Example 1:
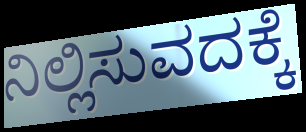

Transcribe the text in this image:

ನಿಲ್ಲಿಸುವದಕ್ಕೆ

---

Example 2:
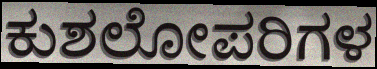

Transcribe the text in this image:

ಕುಶಲೋಪರಿಗಳ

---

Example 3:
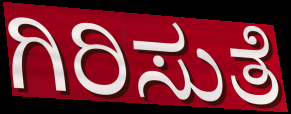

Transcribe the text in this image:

ಗಿರಿಸುತೆ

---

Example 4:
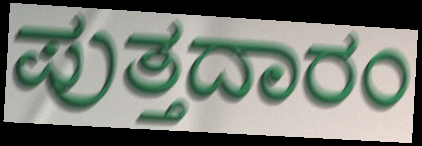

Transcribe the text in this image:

ಪುತ್ತದಾರಂ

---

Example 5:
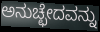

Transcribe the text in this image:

ಅನುಚ್ಛೇದವನ್ನು